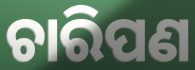
ଚାରିପଣ